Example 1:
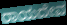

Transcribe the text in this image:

ರಾಯದೇವ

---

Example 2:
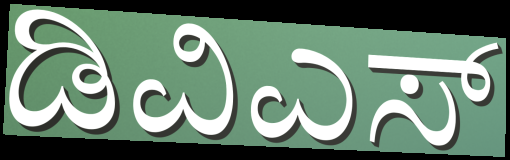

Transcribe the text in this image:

ಡಿವಿಎಸ್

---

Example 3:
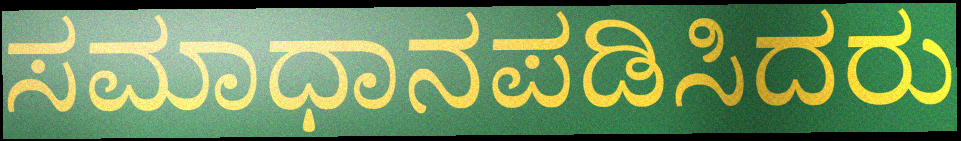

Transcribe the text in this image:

ಸಮಾಧಾನಪಡಿಸಿದರು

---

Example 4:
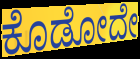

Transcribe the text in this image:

ಕೊಡೋದೇ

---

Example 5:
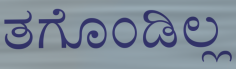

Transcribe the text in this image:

ತಗೊಂಡಿಲ್ಲ